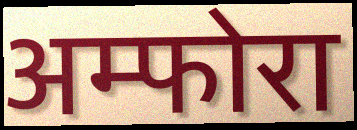
अम्फोरा